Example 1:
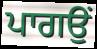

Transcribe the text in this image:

ਪਾਗਉਂ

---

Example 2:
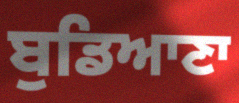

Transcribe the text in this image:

ਬੁਡਿਆਣਾ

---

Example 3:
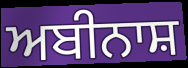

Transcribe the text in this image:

ਅਬੀਨਾਸ਼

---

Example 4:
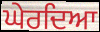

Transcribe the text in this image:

ਘੇਰਦਿਆ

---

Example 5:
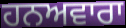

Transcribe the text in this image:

ਹਨਅਵਾਰਾ